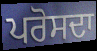
ਪਰੋਸਦਾ